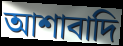
আশাবাদি